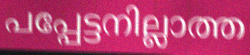
പപ്പേട്ടനില്ലാത്ത